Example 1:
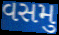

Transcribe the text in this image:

વસમુ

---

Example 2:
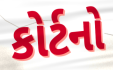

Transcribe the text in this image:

કોર્ટનો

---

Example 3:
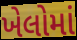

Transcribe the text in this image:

ખેલોમાં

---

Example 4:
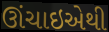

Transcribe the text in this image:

ઊંચાઇએથી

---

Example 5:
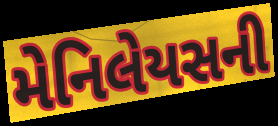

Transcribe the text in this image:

મેનિલેયસની